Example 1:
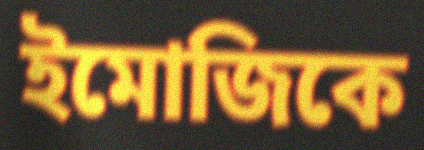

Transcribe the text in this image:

ইমোজিকে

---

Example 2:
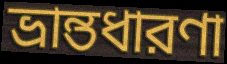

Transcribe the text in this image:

ভ্রান্তধারণা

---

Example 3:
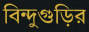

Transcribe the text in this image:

বিন্দুগুড়ির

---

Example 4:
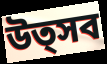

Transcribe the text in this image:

উত্সব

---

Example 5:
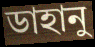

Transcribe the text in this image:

ডাহানু